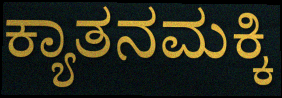
ಕ್ಯಾತನಮಕ್ಕಿ